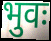
भुवः